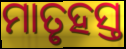
ମାତୃହସ୍ତ